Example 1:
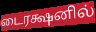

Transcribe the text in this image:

டைரக்ஷனில்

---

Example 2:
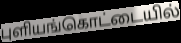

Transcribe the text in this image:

புளியங்கொட்டையில்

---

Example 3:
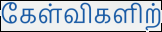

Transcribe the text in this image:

கேள்விகளிற்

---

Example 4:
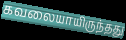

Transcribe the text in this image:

கவலையாயிருந்தது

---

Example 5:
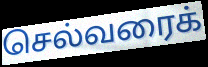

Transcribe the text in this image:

செல்வரைக்